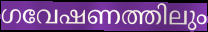
ഗവേഷണത്തിലും